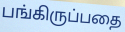
பங்கிருப்பதை